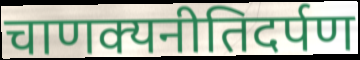
चाणक्यनीतिदर्पण